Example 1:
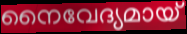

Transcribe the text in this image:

നൈവേദ്യമായ്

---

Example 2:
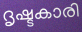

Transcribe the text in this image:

ദൃഷ്ടകാരി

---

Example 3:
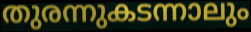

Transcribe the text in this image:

തുരന്നുകടന്നാലും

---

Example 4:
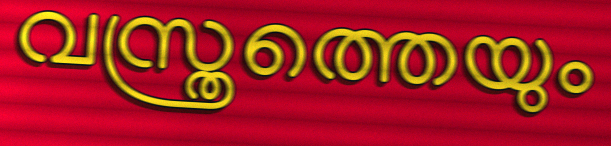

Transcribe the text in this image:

വസ്ത്രത്തെയും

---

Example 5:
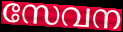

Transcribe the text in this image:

സേവന